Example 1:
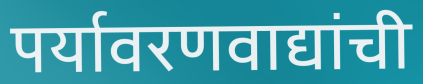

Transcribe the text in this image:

पर्यावरणवाद्यांची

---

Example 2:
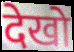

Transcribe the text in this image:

देखो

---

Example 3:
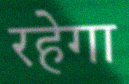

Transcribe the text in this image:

रहेगा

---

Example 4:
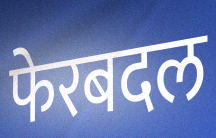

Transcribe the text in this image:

फेरबदल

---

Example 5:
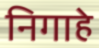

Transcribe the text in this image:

निगाहे